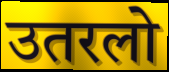
उतरलो